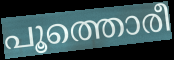
പൂത്തൊരീ